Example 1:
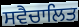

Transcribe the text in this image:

ਸਵੈਚਾਲਿਤ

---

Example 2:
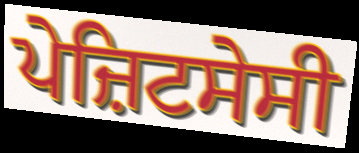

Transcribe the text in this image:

ਪੇਜ਼ਿਟਸੇਸੀ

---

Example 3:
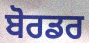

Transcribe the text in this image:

ਬੋਰਡਰ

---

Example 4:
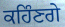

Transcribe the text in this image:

ਕਹਿੰਣਗੇ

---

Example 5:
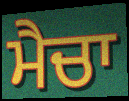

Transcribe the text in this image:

ਮੈਚਾ